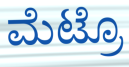
ಮೆಟ್ರೊ